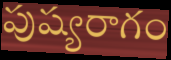
పుష్యరాగం